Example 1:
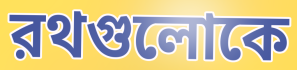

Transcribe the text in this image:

রথগুলোকে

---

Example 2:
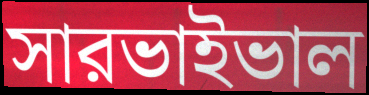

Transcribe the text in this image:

সারভাইভাল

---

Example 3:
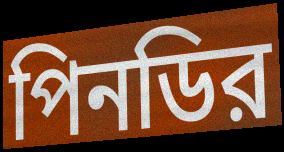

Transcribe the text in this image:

পিনডির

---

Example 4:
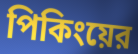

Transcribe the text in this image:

পিকিংয়ের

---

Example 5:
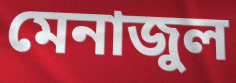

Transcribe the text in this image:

মেনাজুল